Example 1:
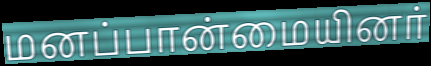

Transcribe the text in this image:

மனப்பான்மையினர்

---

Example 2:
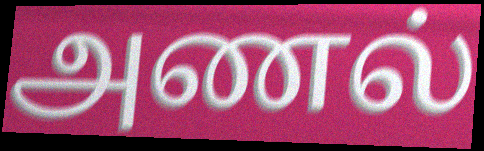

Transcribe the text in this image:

அணல்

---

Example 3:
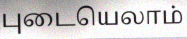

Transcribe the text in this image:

புடையெலாம்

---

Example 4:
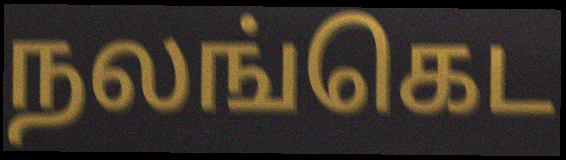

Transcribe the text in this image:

நலங்கெட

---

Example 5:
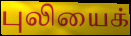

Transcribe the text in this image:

புலியைக்